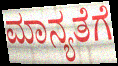
ಮಾನ್ಯತೆಗೆ